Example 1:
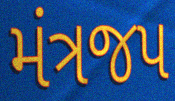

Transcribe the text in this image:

મંત્રજપ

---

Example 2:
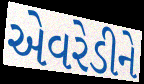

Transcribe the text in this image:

એવરેડીને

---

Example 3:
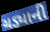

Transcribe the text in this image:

ચડ્યાની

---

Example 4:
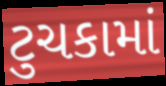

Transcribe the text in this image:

ટુચકામાં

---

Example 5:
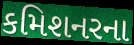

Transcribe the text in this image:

કમિશનરના